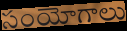
సంయోగాలు